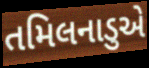
તમિલનાડુએ